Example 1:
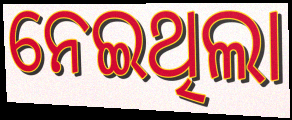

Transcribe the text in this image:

ନେଇଥିଲା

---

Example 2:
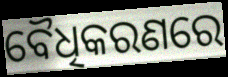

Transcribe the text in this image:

ବୈଧିକରଣରେ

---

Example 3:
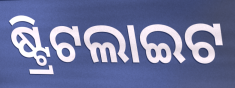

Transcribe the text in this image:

ଷ୍ଟ୍ରିଟଲାଇଟ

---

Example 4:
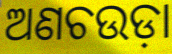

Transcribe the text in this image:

ଅଣଚଉଡ଼ା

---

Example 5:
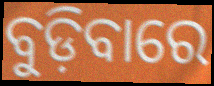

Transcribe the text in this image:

ବୁଡ଼ିବାରେ